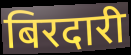
बिरदारी